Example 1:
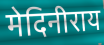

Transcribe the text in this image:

मेदिनीराय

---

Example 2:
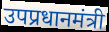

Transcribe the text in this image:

उपप्रधानमंत्री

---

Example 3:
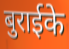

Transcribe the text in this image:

बुराईके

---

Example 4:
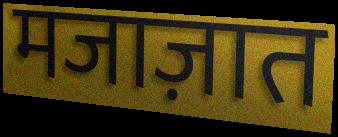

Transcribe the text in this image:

मजाज़ात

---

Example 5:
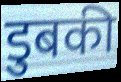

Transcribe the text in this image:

डुबकी